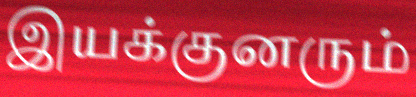
இயக்குனரும்